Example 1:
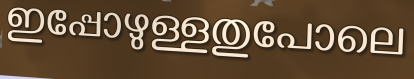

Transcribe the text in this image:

ഇപ്പോഴുള്ളതുപോലെ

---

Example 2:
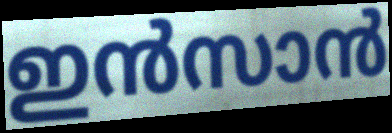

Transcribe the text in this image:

ഇൻസാൻ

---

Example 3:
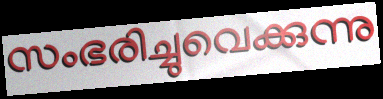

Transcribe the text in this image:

സംഭരിച്ചുവെക്കുന്നു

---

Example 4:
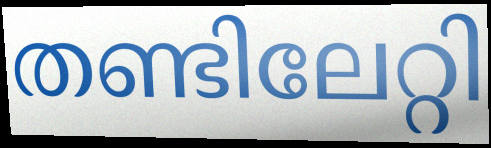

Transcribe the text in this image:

തണ്ടിലേറ്റി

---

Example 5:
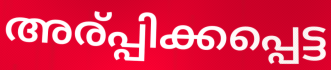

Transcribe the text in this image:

അര്പ്പിക്കപ്പെട്ട